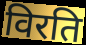
विरति